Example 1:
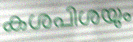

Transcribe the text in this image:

കശപിശയും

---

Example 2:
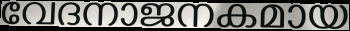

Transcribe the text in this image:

വേദനാജനകമായ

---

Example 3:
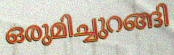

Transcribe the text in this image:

ഒരുമിച്ചുറങ്ങി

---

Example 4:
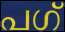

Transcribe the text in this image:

പഗ്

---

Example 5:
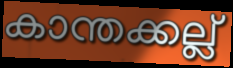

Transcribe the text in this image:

കാന്തക്കല്ല്